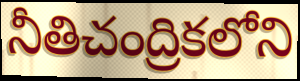
నీతిచంద్రికలోని